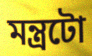
মন্ত্ৰটো